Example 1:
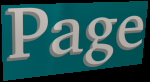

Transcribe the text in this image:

Page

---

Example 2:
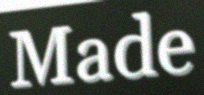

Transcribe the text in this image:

Made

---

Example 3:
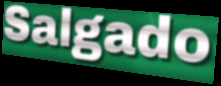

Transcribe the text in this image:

Salgado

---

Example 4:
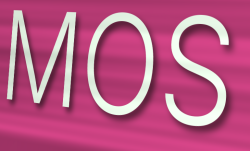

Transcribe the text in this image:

MOS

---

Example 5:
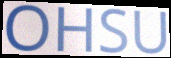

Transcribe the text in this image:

OHSU